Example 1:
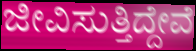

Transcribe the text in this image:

ಜೀವಿಸುತ್ತಿದ್ದೇವೆ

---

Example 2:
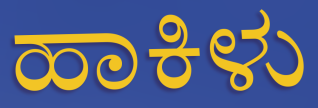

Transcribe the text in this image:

ಹಾಕಿಳು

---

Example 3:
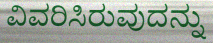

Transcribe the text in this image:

ವಿವರಿಸಿರುವುದನ್ನು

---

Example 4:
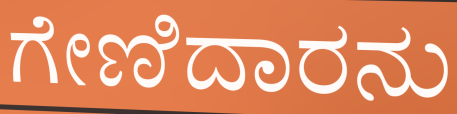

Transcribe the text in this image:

ಗೇಣಿದಾರನು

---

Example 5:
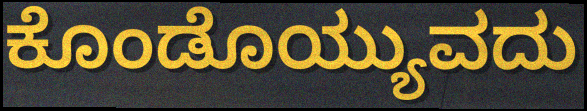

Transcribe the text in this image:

ಕೊಂಡೊಯ್ಯುವದು